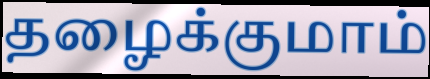
தழைக்குமாம்